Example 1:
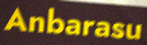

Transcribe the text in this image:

Anbarasu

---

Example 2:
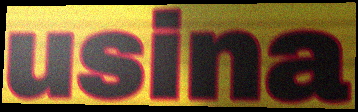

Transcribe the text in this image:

usina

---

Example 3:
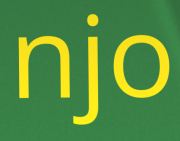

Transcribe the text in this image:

njo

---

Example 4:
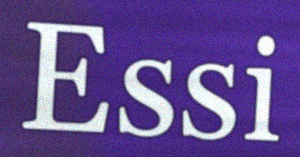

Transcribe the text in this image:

Essi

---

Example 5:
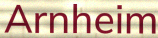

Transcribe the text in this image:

Arnheim